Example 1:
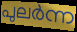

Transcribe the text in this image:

പുലർന്ന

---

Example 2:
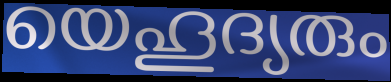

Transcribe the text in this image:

യെഹൂദ്യരും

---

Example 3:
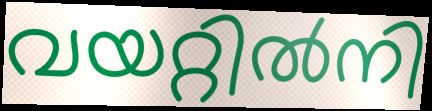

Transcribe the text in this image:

വയറ്റിൽനി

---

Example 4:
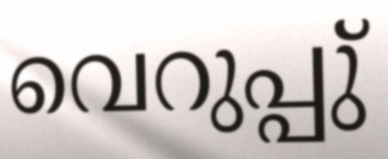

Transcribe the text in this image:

വെറുപ്പു്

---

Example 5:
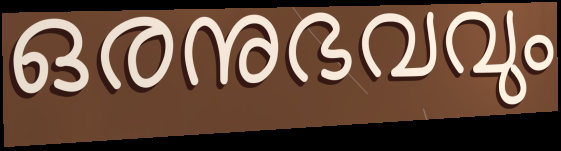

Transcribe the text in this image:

ഒരനുഭവവും